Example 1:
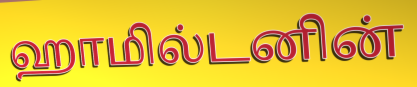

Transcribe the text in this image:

ஹாமில்டனின்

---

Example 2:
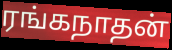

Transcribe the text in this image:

ரங்கநாதன்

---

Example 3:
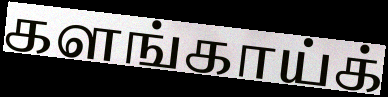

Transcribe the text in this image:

களங்காய்க்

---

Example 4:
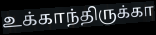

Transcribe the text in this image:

உக்காந்திருக்கா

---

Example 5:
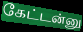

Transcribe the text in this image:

கேட்டன்னு